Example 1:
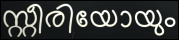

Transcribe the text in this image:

സ്റ്റീരിയോയും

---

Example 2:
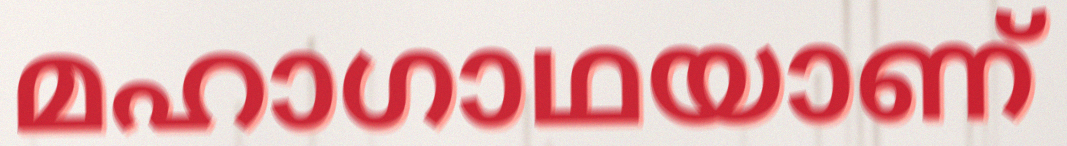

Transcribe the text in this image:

മഹാഗാഥയാണ്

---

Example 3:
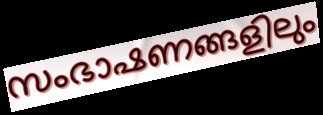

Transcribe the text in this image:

സംഭാഷണങ്ങളിലും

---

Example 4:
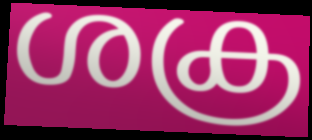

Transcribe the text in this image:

ശക്ര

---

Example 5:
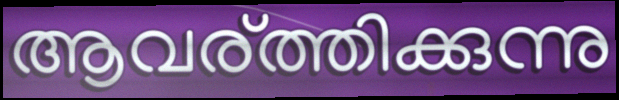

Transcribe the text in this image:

ആവര്ത്തിക്കുന്നു